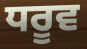
ਧਰੂਵ